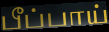
பீப்பாய்